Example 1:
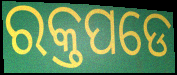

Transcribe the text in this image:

ରକ୍ତପଡେ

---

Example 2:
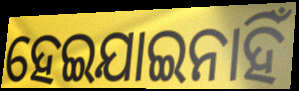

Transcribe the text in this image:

ହେଇଯାଇନାହିଁ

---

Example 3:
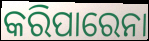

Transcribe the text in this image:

କରିପାରେନା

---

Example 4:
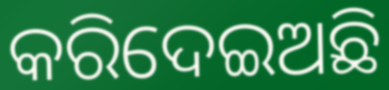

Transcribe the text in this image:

କରିଦେଇଅଛି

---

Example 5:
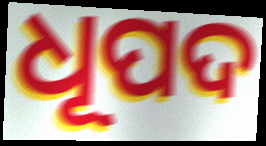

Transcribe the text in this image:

ଧୂପଦ